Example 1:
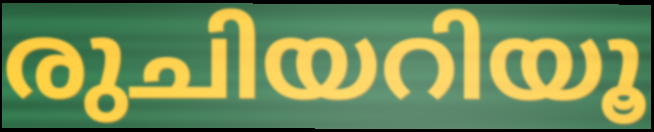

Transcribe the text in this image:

രുചിയറിയൂ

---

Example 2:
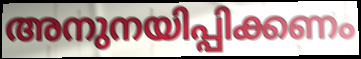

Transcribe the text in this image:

അനുനയിപ്പിക്കണം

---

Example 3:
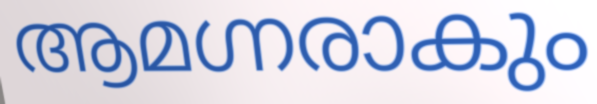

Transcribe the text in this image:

ആമഗ്നരാകും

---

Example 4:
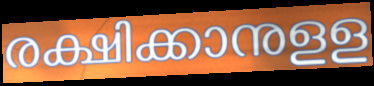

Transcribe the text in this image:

രക്ഷിക്കാനുളള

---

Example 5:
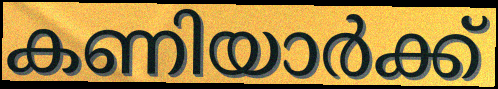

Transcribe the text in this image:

കണിയാർക്ക്